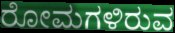
ರೋಮಗಳಿರುವ